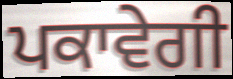
ਪਕਾਵੇਗੀ